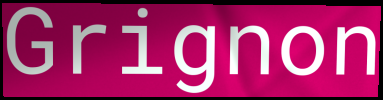
Grignon